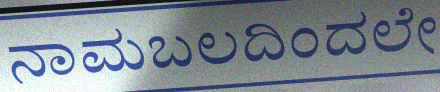
ನಾಮಬಲದಿಂದಲೇ